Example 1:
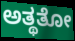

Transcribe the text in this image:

ಅತ್ಥತೋ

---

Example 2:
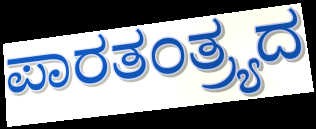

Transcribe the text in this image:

ಪಾರತಂತ್ರ್ಯದ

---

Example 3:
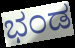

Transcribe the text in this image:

ಭಂಡ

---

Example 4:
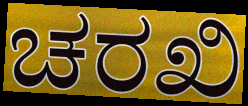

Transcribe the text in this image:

ಚರಖಿ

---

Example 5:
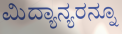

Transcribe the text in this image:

ಮಿದ್ಯಾನ್ಯರನ್ನೂ